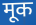
मूक